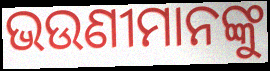
ଭଉଣୀମାନଙ୍କୁ